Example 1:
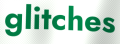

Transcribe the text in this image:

glitches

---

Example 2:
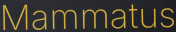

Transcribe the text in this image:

Mammatus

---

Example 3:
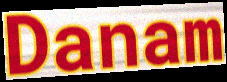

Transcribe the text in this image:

Danam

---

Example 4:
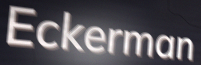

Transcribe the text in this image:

Eckerman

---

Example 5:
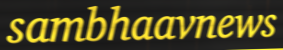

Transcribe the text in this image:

sambhaavnews